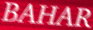
BAHAR